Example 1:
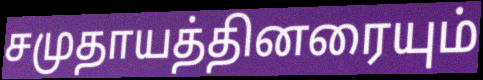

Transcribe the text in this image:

சமுதாயத்தினரையும்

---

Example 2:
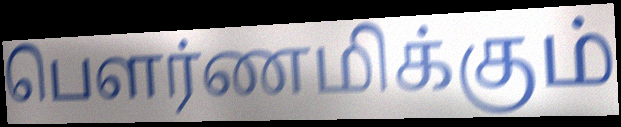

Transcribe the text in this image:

பௌர்ணமிக்கும்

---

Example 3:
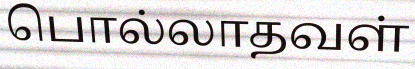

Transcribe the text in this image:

பொல்லாதவள்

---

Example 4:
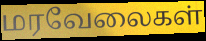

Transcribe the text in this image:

மரவேலைகள்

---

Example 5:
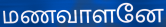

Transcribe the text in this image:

மணவாளனே